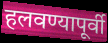
हलवण्यापूर्वी